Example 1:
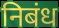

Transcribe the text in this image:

निबंध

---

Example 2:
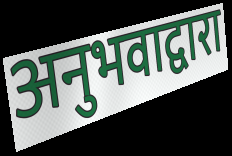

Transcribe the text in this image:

अनुभवाद्वारा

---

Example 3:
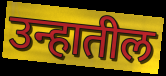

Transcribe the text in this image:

उन्हातील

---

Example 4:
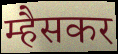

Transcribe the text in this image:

म्हैसकर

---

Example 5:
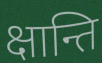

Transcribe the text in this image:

क्षान्ति